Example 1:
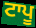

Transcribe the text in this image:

ਟਾਪੂ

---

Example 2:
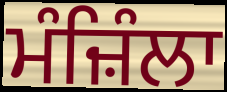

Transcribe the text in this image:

ਮੰਜ਼ਿੰਲਾ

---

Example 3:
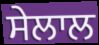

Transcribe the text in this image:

ਸੇਲਾਲ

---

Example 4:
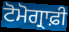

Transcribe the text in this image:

ਟੋਮੋਗ੍ਰਾਫ਼ੀ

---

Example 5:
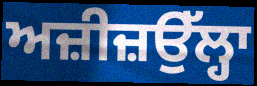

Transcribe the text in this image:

ਅਜ਼ੀਜ਼ਉੱਲ੍ਹਾ